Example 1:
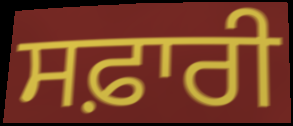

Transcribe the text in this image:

ਸਫ਼ਾਰੀ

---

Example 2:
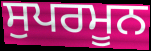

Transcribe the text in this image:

ਸੁਪਰਮੂਨ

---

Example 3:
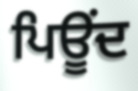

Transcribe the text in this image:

ਪਿਊਂਦ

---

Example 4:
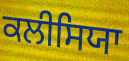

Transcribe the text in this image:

ਕਲੀਸਿਯਾ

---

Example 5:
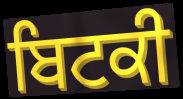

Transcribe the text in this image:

ਬਿਟਕੀ